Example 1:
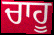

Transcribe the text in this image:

ਚਾਹੂ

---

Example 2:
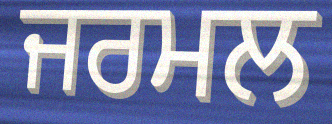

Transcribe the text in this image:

ਜਰਮਲ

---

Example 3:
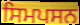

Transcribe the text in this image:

ਸਿਮਪਸਨ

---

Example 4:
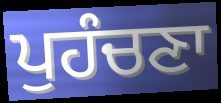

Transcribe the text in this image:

ਪੁਹੰਚਣਾ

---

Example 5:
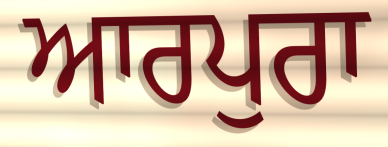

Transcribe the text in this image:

ਆਰਪੁਰਾ